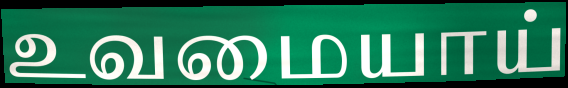
உவமையாய்